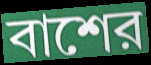
বাশের